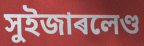
সুইজাৰলেণ্ড